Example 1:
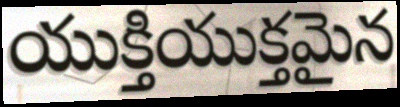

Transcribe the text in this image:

యుక్తియుక్తమైన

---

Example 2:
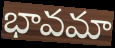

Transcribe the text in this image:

భావమా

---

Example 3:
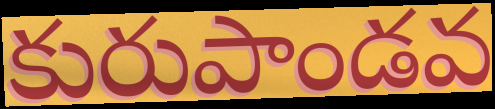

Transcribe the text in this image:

కురుపాండవ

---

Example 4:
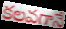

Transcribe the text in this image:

కలవగానే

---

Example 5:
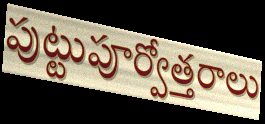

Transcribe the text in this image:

పుట్టుపూర్వోత్తరాలు